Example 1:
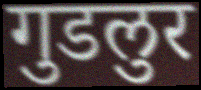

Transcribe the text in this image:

गुडलुर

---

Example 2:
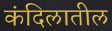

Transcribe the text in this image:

कंदिलातील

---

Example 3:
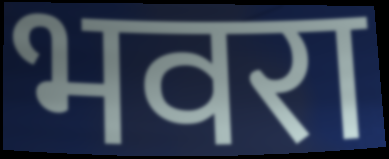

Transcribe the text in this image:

भवरा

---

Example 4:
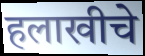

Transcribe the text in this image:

हलाखीचे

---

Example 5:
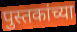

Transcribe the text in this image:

पुस्तकांच्या